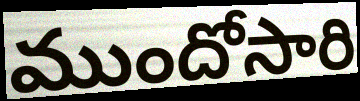
ముందోసారి